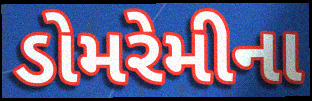
ડોમરેમીના